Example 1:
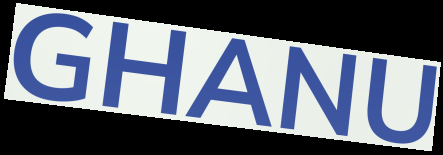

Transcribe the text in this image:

GHANU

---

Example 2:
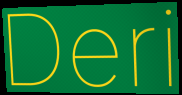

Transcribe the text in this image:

Deri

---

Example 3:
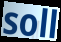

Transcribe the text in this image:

soll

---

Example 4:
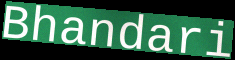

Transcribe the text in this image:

Bhandari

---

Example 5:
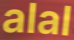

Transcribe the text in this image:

alal